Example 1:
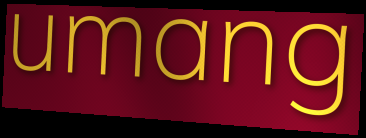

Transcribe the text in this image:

umang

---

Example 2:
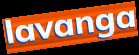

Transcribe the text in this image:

lavanga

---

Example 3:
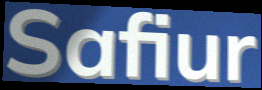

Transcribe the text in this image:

Safiur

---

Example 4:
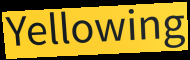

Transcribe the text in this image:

Yellowing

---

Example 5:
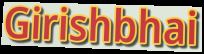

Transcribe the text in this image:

Girishbhai